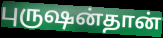
புருஷன்தான்